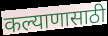
कल्याणासाठी